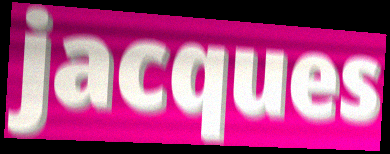
jacques